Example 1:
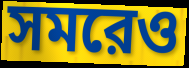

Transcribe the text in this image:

সমরেও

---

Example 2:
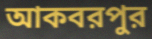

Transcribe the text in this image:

আকবরপুর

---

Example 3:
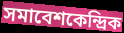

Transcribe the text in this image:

সমাবেশকেন্দ্রিক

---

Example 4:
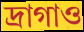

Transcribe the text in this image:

দ্রাগাও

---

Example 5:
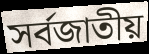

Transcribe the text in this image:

সর্বজাতীয়